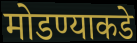
मोडण्याकडे